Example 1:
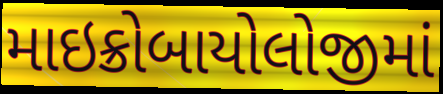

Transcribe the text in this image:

માઇક્રોબાયોલોજીમાં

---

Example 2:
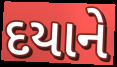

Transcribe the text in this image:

દયાને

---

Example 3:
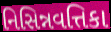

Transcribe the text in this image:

નિસિન્નવત્તિકા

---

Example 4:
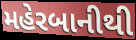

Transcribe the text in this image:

મહેરબાનીથી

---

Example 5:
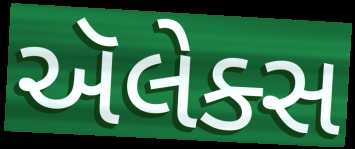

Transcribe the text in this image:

ઍલેક્સ